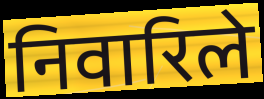
निवारिले